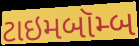
ટાઇમબૉમ્બ